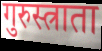
गुरुस्त्राता